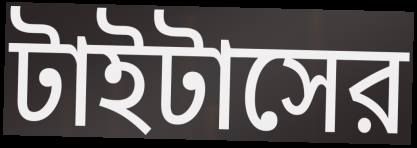
টাইটাসের